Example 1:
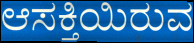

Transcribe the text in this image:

ಆಸಕ್ತಿಯಿರುವ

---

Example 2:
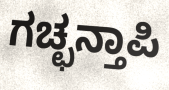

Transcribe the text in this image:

ಗಚ್ಛನ್ತಾಪಿ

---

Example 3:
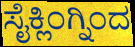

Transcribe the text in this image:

ಸೈಕ್ಲಿಂಗ್ನಿಂದ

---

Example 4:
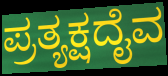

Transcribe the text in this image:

ಪ್ರತ್ಯಕ್ಷದೈವ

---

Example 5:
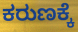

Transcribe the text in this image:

ಕರುಣಕ್ಕೆ